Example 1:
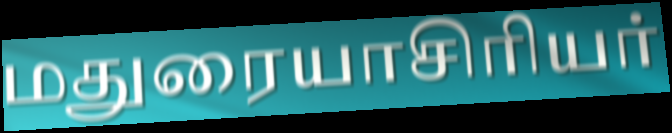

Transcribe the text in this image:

மதுரையாசிரியர்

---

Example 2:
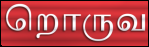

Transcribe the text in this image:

றொருவ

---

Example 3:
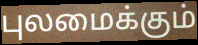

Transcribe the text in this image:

புலமைக்கும்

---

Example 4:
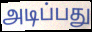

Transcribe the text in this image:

அடிப்பது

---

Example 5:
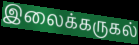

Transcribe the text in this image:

இலைக்கருகல்